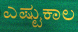
ಎಷ್ಟುಕಾಲ